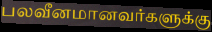
பலவீனமானவர்களுக்கு